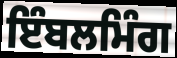
ਇੰਬਲਮਿੰਗ